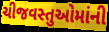
ચીજવસ્તુઓમાંની